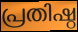
പ്രതിഷ്ഠ